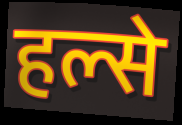
हल्से